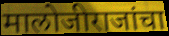
मालोजीराजांचा